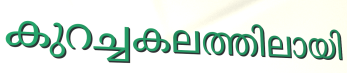
കുറച്ചകലത്തിലായി